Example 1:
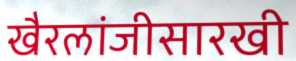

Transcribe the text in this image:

खैरलांजीसारखी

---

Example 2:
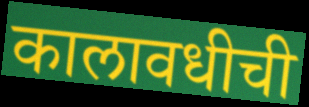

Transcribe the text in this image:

कालावधीची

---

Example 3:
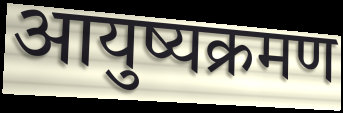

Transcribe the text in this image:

आयुष्यक्रमण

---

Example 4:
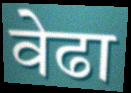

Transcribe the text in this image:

वेढा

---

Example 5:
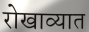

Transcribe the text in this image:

रोखाव्यात